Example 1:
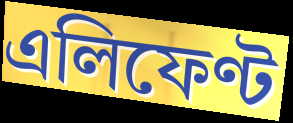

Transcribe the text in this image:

এলিফেণ্ট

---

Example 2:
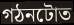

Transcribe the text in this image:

গঠনটোত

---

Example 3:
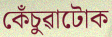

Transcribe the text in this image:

কেঁচুৱাটোক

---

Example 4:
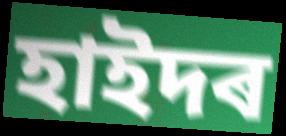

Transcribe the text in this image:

হাইদৰ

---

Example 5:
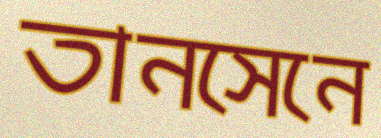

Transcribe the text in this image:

তানসেনে